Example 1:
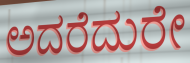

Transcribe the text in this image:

ಅದರೆದುರೇ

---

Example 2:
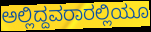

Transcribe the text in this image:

ಅಲ್ಲಿದ್ದವರಾರಲ್ಲಿಯೂ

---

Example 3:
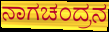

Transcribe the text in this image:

ನಾಗಚಂದ್ರನ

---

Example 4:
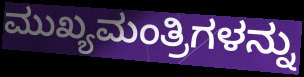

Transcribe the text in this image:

ಮುಖ್ಯಮಂತ್ರಿಗಳನ್ನು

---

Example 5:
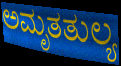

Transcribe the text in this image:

ಅಮೃತತುಲ್ಯ